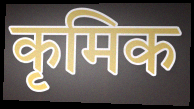
कृमिक